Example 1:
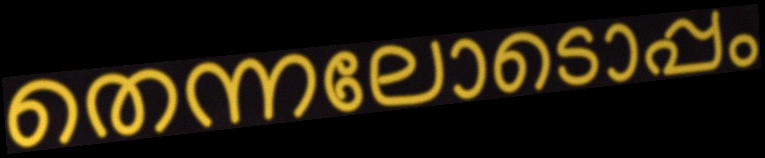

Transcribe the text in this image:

തെന്നലോടൊപ്പം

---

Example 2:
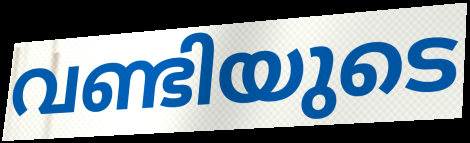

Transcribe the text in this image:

വണ്ടിയുടെ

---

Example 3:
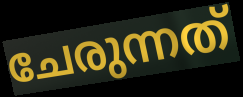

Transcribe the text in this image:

ചേരുന്നത്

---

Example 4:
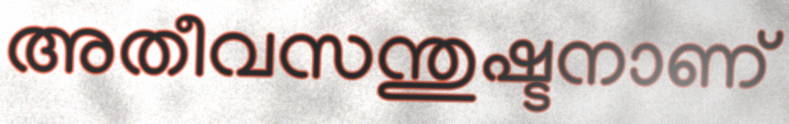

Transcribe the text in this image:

അതീവസന്തുഷ്ടനാണ്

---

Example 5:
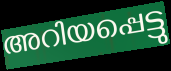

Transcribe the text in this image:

അറിയപ്പെട്ടു